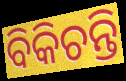
ବିକିଚନ୍ତି